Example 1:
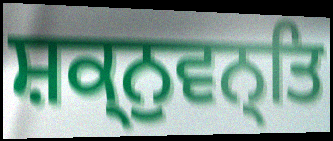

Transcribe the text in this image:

ਸ਼ਕ੍ਨੁਵਨ੍ਤਿ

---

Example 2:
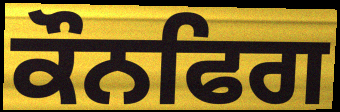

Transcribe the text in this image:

ਕੌਨਫਿਗ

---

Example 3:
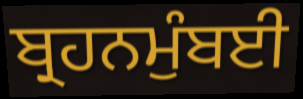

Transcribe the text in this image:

ਬ੍ਰਹਨਮੁੰਬਈ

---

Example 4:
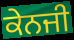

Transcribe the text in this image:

ਕੇਨਜੀ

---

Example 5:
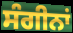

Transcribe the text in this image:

ਸੰਗੀਨਾਂ